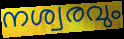
നശ്വരവും